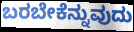
ಬರಬೇಕೆನ್ನುವುದು